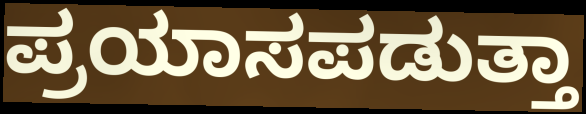
ಪ್ರಯಾಸಪಡುತ್ತಾ